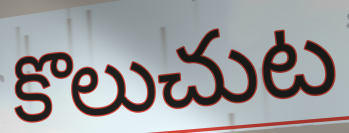
కొలుచుట